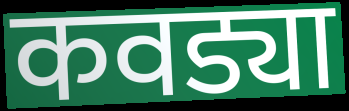
कवड्या